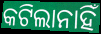
କଟିଲାନାହିଁ